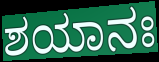
ಶಯಾನಃ